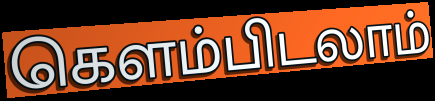
கெளம்பிடலாம்